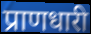
प्राणधारी